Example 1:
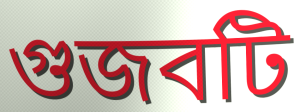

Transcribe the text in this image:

গুজবটি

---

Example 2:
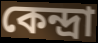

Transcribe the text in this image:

কেন্দ্রা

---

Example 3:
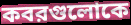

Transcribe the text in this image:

কবরগুলোকে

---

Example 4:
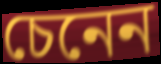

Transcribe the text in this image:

চেনেন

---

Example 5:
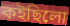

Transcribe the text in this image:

কইছিলো